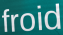
froid